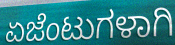
ಏಜೆಂಟುಗಳಾಗಿ